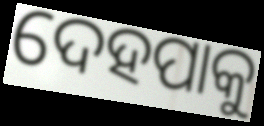
ଦେହପାକୁ